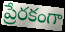
ప్రేరకంగా